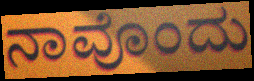
ನಾವೊಂದು